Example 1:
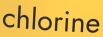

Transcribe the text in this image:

chlorine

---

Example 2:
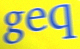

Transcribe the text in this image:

geq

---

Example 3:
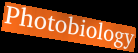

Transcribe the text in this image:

Photobiology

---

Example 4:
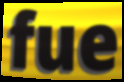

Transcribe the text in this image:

fue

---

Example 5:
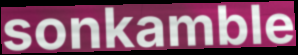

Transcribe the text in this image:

sonkamble